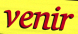
venir